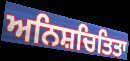
ਅਨਿਸ਼ਚਿਤਿਤਾ